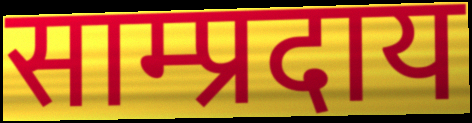
साम्प्रदाय